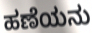
ಹಣೆಯನು